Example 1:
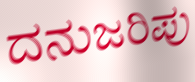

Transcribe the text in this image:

ದನುಜರಿಪು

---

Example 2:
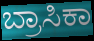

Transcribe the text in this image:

ಬ್ರಾಸಿಕಾ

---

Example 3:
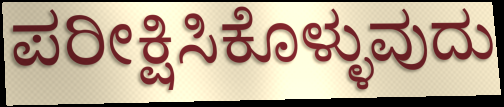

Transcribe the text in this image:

ಪರೀಕ್ಷಿಸಿಕೊಳ್ಳುವುದು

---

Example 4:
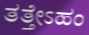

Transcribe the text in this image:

ತತ್ತೇಽಹಂ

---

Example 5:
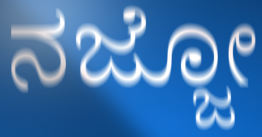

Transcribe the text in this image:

ನಜ್ಜೋ